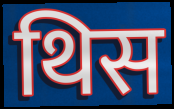
थिस